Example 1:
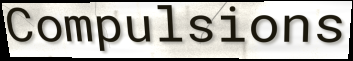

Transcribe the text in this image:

Compulsions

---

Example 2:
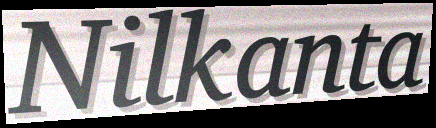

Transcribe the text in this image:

Nilkanta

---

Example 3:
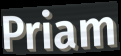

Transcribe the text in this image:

Priam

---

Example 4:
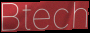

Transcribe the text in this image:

Btech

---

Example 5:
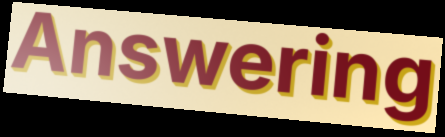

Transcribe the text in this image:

Answering